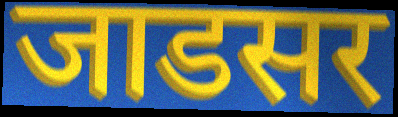
जाडसर